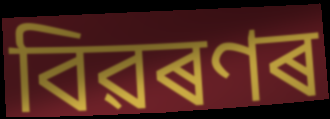
বিৱৰণৰ